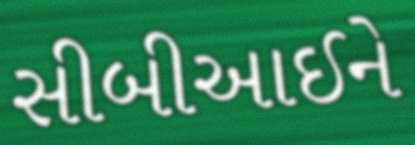
સીબીઆઈને